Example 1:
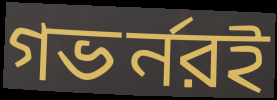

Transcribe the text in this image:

গভর্নরই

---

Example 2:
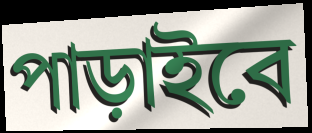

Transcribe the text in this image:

পাড়াইবে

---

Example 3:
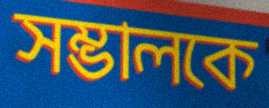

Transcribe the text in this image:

সম্ভালকে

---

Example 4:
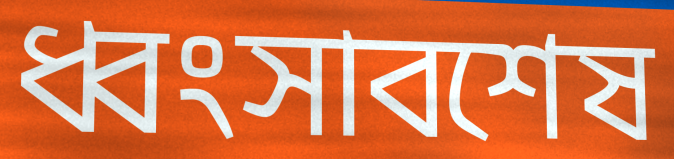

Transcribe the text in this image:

ধ্বংসাবশেষ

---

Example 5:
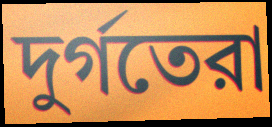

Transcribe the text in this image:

দুর্গতেরা